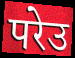
परेउ